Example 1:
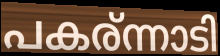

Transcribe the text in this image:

പകര്ന്നാടി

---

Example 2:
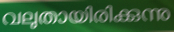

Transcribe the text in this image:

വലുതായിരിക്കുന്നു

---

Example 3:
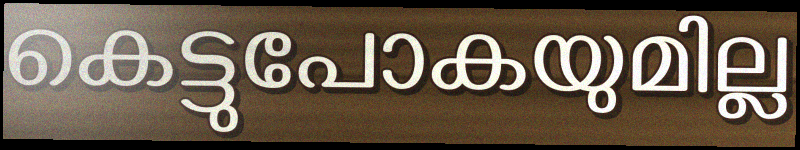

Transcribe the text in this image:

കെട്ടുപോകയുമില്ല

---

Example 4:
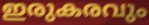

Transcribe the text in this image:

ഇരുകരവും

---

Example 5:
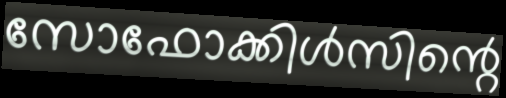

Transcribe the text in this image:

സോഫോക്കിൾസിന്റെ